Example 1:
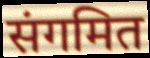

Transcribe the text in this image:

संगमित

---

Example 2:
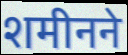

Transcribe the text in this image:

शमीनने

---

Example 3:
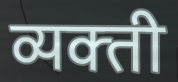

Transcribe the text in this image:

व्यक्‍ती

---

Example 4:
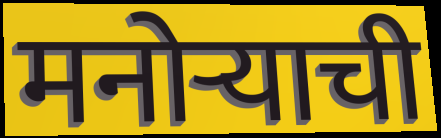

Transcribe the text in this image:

मनोऱ्याची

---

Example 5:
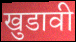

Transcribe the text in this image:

खुडावी